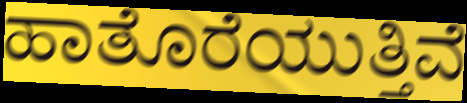
ಹಾತೊರೆಯುತ್ತಿವೆ